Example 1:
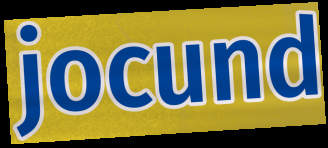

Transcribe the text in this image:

jocund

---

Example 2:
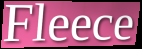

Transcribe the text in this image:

Fleece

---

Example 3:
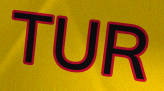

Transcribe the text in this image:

TUR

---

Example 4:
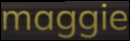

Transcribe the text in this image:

maggie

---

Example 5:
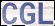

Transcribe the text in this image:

CGL